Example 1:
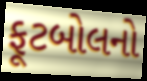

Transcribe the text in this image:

ફૂટબોલનો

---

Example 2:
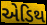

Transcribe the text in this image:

એડિથ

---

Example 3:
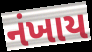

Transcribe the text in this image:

નંખાય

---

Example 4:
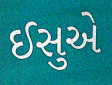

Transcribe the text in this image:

ઈસુએ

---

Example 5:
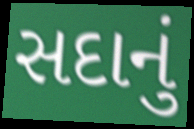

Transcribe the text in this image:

સદાનું